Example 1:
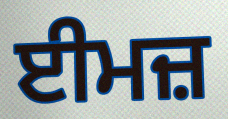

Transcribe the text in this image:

ਈਮਜ਼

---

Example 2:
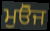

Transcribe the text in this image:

ਮੁਓੋਜ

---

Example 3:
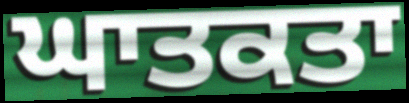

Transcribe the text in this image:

ਘਾਤਕਤਾ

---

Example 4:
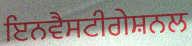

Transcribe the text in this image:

ਇਨਵੈਸਟੀਗੇਸ਼ਨਲ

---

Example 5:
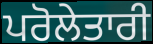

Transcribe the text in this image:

ਪਰੋਲੇਤਾਰੀ